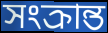
সংক্রান্ত